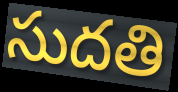
సుదతి